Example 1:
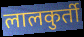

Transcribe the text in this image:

लालकुर्ती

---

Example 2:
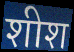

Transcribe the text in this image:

शीश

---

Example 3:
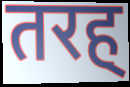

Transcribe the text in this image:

तरह्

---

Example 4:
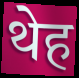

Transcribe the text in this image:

थेह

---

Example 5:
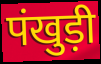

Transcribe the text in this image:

पंखुड़ी